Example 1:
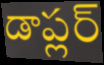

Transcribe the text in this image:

డాప్లర్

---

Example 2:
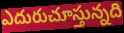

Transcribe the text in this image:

ఎదురుచూస్తున్నది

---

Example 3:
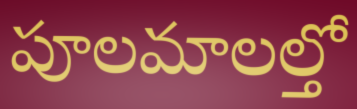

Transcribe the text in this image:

పూలమాలల్తో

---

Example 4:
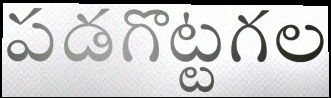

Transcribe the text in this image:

పడగొట్టగల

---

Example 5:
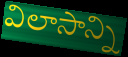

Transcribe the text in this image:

విలాసాన్ని